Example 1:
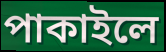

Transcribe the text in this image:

পাকাইলে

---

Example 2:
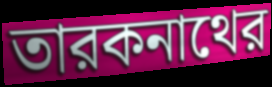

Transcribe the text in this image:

তারকনাথের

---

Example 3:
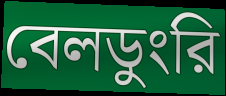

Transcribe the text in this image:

বেলডুংরি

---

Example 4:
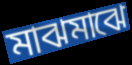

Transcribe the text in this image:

মাঝমাঝে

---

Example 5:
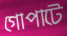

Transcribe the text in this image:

গোপাটে